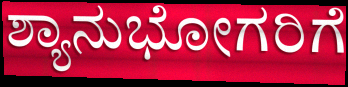
ಶ್ಯಾನುಭೋಗರಿಗೆ